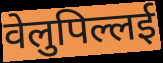
वेलुपिल्लई